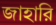
জাহারি